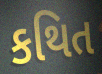
કથિત